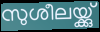
സുശീലയ്ക്കു്